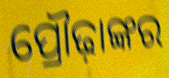
ପ୍ରୌଢ଼ାଙ୍କର